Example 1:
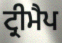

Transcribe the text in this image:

ਟ੍ਰੀਮੈਪ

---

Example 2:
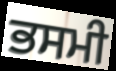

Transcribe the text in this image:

ਭਸਮੀ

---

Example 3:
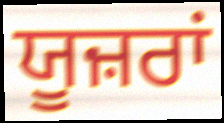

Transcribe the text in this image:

ਯੂਜ਼ਰਾਂ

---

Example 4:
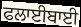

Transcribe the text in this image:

ਫਲਾਈਬਾਈ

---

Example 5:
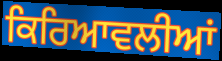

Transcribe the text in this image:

ਕਿਰਿਆਵਲੀਆਂ